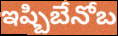
ఇష్బిబేనోబ